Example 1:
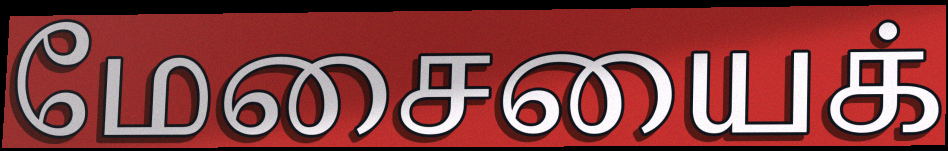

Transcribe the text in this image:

மேசையைக்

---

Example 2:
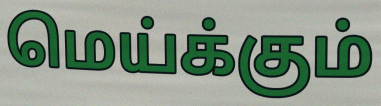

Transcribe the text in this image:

மெய்க்கும்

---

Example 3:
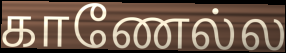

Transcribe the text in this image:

காணேல்ல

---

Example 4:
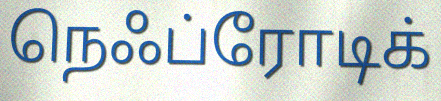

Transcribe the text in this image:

நெஃப்ரோடிக்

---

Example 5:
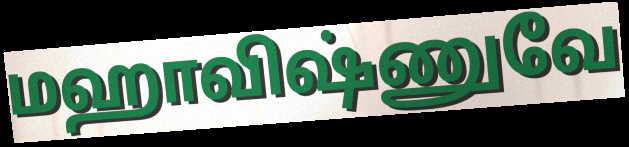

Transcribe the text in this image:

மஹாவிஷ்ணுவே